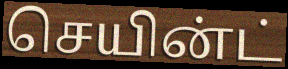
செயின்ட்